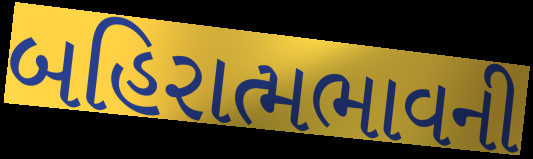
બહિરાત્મભાવની